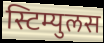
स्टिम्युलस